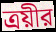
ত্রয়ীর